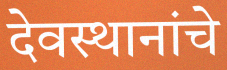
देवस्थानांचे